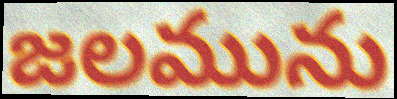
జలమును